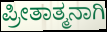
ಪ್ರೀತಾತ್ಮನಾಗಿ